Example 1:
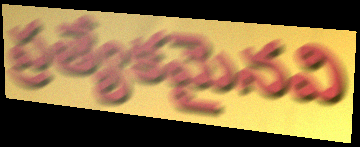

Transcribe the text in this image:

ప్రత్యేకమైనవి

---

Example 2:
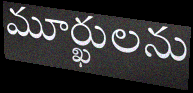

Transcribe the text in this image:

మూర్ఖులను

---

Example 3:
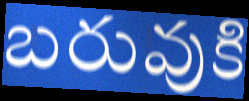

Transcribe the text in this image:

బరువుకి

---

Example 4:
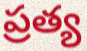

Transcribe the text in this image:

ప్రత్య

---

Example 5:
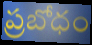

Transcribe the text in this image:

ప్రబోధం